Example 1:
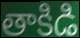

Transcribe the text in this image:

తాకిడి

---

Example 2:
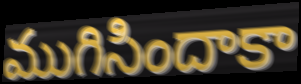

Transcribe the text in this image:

ముగిసిందాకా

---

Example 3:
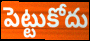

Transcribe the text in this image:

పెట్టుకోదు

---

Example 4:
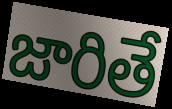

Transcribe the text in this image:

జారితే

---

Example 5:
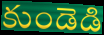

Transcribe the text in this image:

కుండెడి